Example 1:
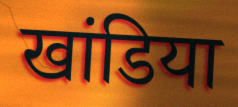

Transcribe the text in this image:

खांडिया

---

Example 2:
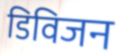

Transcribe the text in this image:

डिविजन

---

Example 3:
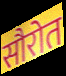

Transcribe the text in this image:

सौरोत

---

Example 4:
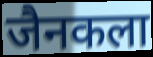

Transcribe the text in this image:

जैनकला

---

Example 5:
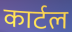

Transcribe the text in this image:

कार्टल